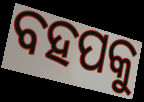
ବହପକୁ